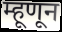
म्हूणून